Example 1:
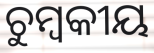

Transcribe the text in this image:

ଚୁମ୍ବକୀୟ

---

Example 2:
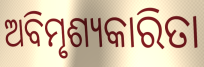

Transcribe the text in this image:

ଅବିମୃଶ୍ୟକାରିତା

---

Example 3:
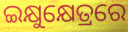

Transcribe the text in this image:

ଇକ୍ଷୁକ୍ଷେତ୍ରରେ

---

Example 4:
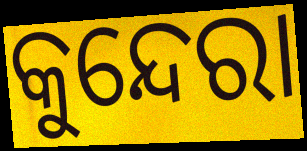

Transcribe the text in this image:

କୁନ୍ଦେରା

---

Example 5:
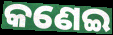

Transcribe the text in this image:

କଣେଇ